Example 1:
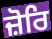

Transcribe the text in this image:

ਜ਼ੋਰਿ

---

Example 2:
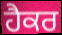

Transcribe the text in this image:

ਹੈਕਰ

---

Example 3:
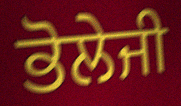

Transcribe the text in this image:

ਭੋਲੇਜੀ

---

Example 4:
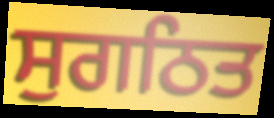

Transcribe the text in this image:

ਸੁਗਠਿਤ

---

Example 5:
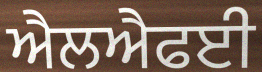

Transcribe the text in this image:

ਐਲਐਫਈ